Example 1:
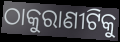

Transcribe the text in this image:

ଠାକୁରାଣୀଟିକୁ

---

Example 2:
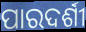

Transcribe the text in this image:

ପାରଦର୍ଶୀ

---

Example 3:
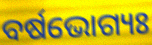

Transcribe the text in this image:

ବର୍ଷଭୋଗ୍ୟଃ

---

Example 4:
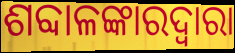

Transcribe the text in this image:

ଶବ୍ଦାଳଙ୍କାରଦ୍ୱାରା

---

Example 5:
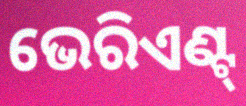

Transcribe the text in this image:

ଭେରିଏଣ୍ଟ୍